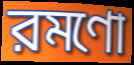
রমণো